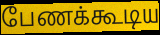
பேணக்கூடிய